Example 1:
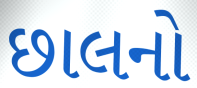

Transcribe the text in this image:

છાલનો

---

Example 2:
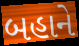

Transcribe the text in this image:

બહાને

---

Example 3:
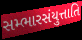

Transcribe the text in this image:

સમ્ભારસંયુત્તાતિ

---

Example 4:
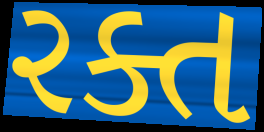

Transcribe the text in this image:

રક્ત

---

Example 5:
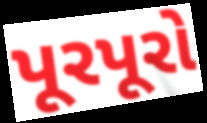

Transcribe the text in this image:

પૂરપૂરો